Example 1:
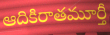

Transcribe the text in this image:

ఆదికిరాతమూర్తీ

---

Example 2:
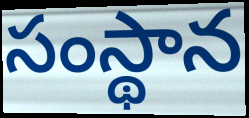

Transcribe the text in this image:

సంస్థాన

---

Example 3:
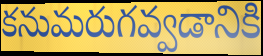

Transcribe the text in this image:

కనుమరుగవ్వడానికి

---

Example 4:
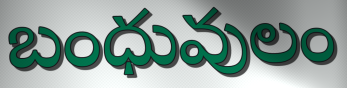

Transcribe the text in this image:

బంధువులం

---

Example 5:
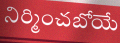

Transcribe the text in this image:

నిర్మించబోయే